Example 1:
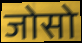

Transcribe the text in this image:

जोसो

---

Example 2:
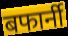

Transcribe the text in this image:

बफार्नी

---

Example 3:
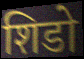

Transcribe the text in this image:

शिडो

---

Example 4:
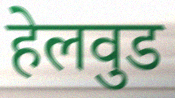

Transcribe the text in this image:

हेलवुड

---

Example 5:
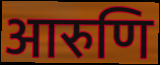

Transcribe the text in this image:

आरुणि